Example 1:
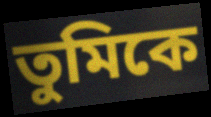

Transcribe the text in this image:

তুমিকে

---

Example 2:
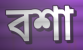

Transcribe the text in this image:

বশা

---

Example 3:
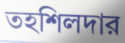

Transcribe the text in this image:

তহশিলদার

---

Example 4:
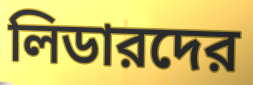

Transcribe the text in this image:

লিডারদের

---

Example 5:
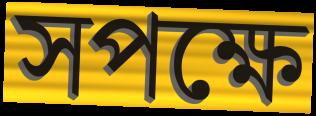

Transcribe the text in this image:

সপক্ষে